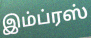
இம்ப்ரஸ்